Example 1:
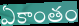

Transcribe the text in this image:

ఏకాంతం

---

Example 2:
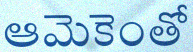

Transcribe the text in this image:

ఆమెకెంతో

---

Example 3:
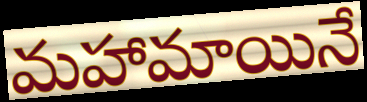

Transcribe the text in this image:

మహామాయినే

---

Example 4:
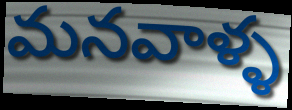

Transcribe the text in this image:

మనవాళ్ళ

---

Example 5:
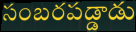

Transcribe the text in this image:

సంబరపడ్డాడు